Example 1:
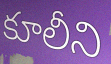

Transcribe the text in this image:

కూలీని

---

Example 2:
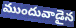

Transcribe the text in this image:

ముందువాడైన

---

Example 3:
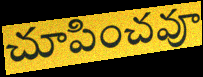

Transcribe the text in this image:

చూపించవూ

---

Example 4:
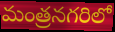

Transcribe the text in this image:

మంత్రనగరిలో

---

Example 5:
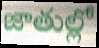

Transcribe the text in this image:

జాతుల్లో